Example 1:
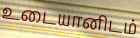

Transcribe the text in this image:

உடையானிடம்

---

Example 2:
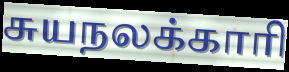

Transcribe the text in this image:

சுயநலக்காரி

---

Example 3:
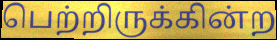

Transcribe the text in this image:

பெற்றிருக்கின்ற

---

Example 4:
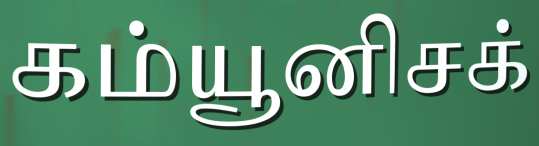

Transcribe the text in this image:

கம்யூனிசக்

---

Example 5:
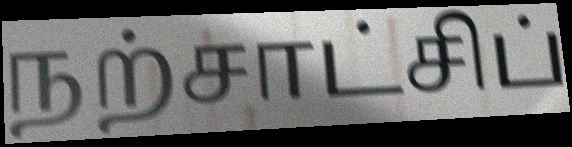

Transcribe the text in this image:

நற்சாட்சிப்